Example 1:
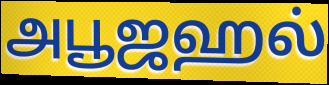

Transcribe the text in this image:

அபூஜஹல்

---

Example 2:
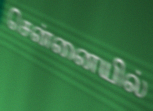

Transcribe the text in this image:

சென்னையில்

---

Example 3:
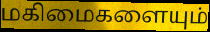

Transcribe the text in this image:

மகிமைகளையும்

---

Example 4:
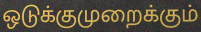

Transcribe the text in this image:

ஒடுக்குமுறைக்கும்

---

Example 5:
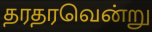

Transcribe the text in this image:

தரதரவென்று